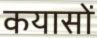
कयासों